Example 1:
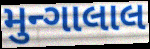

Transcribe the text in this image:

મુન્ગાલાલ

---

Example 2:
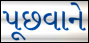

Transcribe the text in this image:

પૂછવાને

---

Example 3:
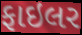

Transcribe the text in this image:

ફાઇલર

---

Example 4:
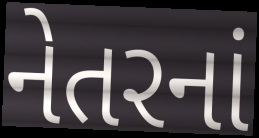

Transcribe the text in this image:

નેતરનાં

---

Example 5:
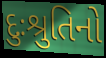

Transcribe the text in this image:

દુઃશ્રુતિનો